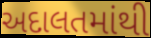
અદાલતમાંથી